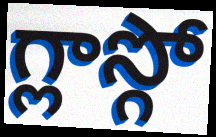
గ్లాస్గో